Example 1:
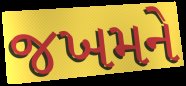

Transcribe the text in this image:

જખમને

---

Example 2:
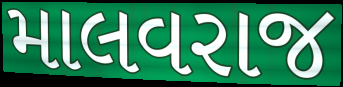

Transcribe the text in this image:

માલવરાજ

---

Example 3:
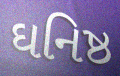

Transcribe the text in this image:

ઘનિષ્ઠ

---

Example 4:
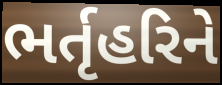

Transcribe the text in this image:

ભર્તૃહરિને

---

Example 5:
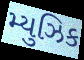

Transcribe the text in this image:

મ્યુઝિક